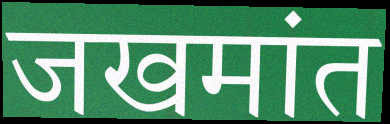
जखमांत